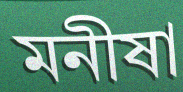
মনীষা